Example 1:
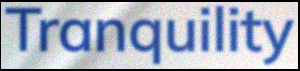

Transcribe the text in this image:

Tranquility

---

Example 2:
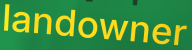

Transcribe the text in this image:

landowner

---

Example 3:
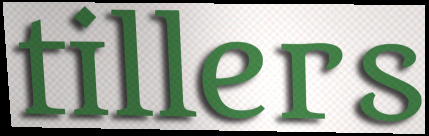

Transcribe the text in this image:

tillers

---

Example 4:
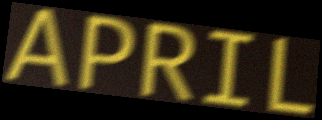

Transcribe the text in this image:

APRIL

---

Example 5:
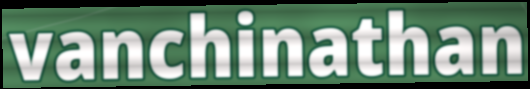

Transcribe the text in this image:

vanchinathan